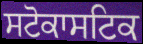
ਸਟੋਕਾਸਟਿਕ